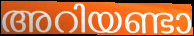
അറിയണ്ടാ